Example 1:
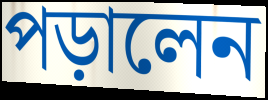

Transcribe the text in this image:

পড়ালেন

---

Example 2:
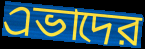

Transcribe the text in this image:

এভাদের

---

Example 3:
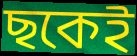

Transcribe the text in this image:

ছকেই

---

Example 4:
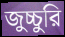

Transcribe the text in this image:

জুচ্চুরি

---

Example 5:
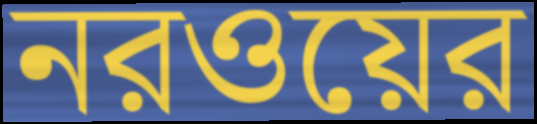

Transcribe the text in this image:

নরওয়ের